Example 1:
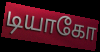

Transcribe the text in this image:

டியாகோ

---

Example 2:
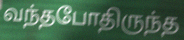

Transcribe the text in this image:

வந்தபோதிருந்த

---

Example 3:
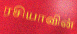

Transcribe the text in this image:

ரசியாவின்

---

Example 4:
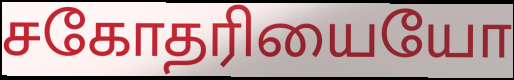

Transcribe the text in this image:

சகோதரியையோ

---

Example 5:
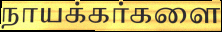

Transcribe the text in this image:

நாயக்கர்களை